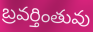
బ్రవర్తింతువు